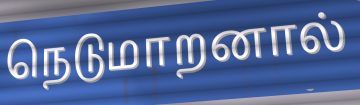
நெடுமாறனால்